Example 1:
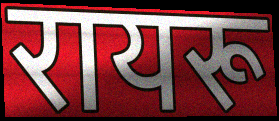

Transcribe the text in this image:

रायरू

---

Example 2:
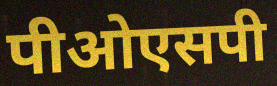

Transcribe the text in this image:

पीओएसपी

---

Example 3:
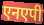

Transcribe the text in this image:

एनएपी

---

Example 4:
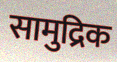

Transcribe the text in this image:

सामुद्रिक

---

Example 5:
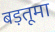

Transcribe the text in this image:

बड़तूमा